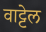
वाट्टेल